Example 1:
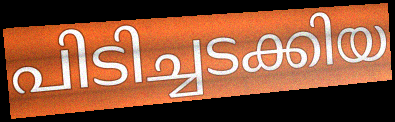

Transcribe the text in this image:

പിടിച്ചടക്കിയ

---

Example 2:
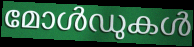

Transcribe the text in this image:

മോൾഡുകൾ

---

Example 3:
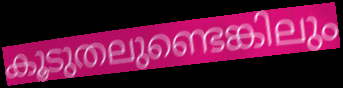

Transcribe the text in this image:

കൂടുതലുണ്ടെങ്കിലും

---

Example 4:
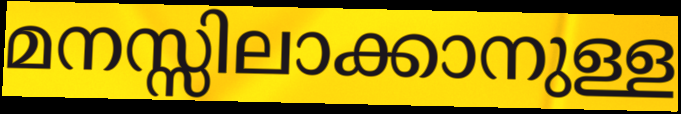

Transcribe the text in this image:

മനസ്സിലാക്കാനുള്ള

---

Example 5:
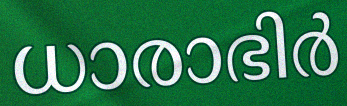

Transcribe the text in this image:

ധാരാഭിർ